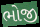
ભોજી